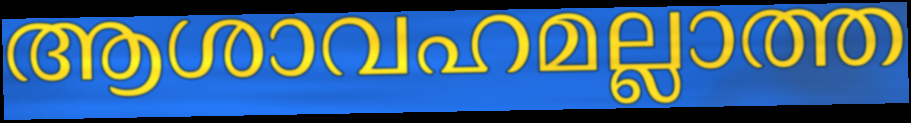
ആശാവഹമല്ലാത്ത